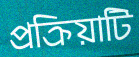
প্রক্রিয়াটি